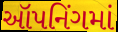
ઑપનિંગમાં